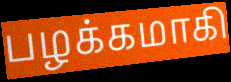
பழக்கமாகி